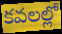
కవలల్లో